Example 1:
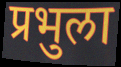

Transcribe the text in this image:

प्रभुला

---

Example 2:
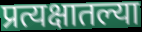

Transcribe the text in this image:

प्रत्यक्षातल्या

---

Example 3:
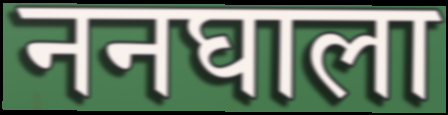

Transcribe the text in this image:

ननघाला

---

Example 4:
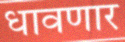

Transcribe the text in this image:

धावणार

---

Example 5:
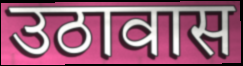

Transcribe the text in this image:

उठावास